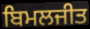
ਬਿਮਲਜੀਤ